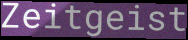
Zeitgeist